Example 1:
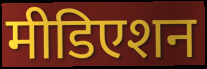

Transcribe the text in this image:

मीडिएशन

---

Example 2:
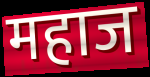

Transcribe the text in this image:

महाज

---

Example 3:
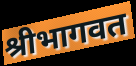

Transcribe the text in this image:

श्रीभागवत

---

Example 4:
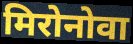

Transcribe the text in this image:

मिरोनोवा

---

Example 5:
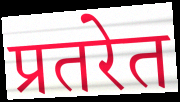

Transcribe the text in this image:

प्रतरेत